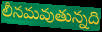
లీనమవుతున్నది